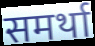
समर्था